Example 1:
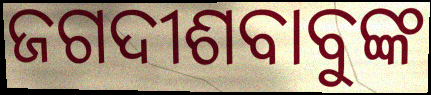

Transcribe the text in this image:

ଜଗଦୀଶବାବୁଙ୍କ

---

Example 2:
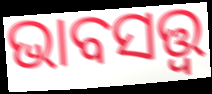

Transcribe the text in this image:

ଭାବସତ୍ତ୍ୱ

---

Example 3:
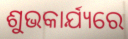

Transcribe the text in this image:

ଶୁଭକାର୍ଯ୍ୟରେ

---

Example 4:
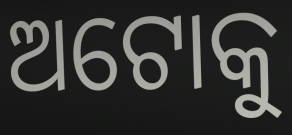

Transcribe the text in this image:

ଅଟୋକୁ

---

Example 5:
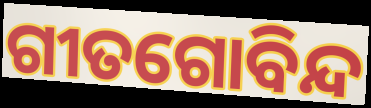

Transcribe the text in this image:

ଗୀତଗୋବିନ୍ଦ